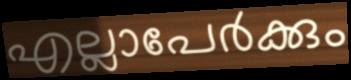
എല്ലാപേർക്കും